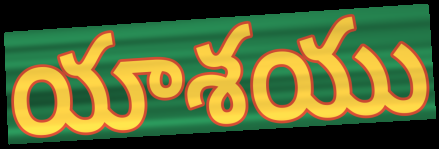
యాశయు